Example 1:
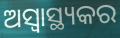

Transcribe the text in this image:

ଅସ୍ବାସ୍ଥ୍ୟକର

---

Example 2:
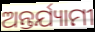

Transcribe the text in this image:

ଅନ୍ତର୍ଯ୍ୟାମୀ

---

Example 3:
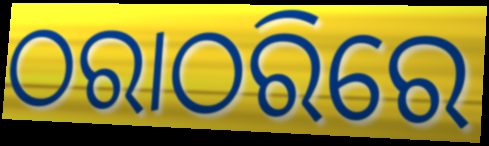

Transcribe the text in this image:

ଠରାଠରିରେ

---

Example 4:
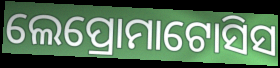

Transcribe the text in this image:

ଲେପ୍ରୋମାଟୋସିସ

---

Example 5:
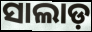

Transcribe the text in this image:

ସାଲାଡ଼